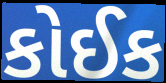
કોઈક